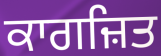
ਕਾਗਜ਼ਿਤ